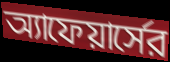
অ্যাফেয়ার্সের